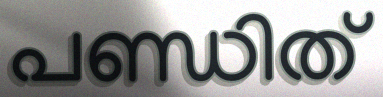
പണ്ഡിത്